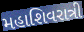
મહાશિવરાત્રી